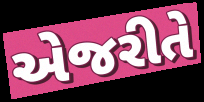
એજરીતે